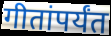
गीतांपर्यंत